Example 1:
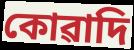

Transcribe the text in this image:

কোৱাদি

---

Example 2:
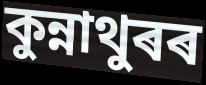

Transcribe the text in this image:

কুন্নাথুৰৰ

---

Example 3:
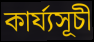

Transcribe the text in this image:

কাৰ্য্যসূচী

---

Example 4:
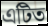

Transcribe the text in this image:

এটিত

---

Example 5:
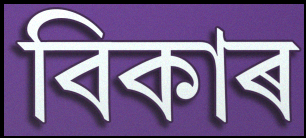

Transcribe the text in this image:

বিকাৰ